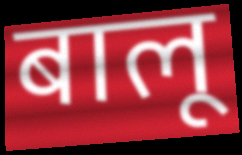
बालू